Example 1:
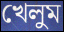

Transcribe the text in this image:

খেলুম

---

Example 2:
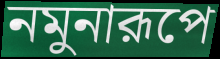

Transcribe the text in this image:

নমুনারূপে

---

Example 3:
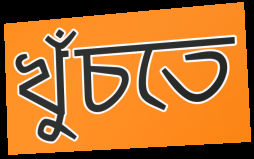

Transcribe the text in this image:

খুঁচতে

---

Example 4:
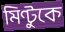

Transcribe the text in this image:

মিণ্টুকে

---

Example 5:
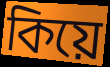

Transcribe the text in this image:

কিয়ে